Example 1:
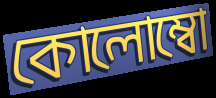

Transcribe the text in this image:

কোলোম্বো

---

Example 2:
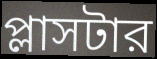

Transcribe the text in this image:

প্লাসটার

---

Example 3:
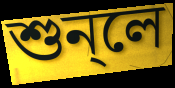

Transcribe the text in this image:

শুন্লে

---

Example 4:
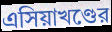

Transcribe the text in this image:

এসিয়াখণ্ডের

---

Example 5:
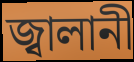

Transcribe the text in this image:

জ্বালানী